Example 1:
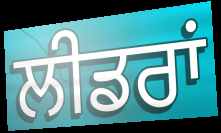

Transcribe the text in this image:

ਲੀਡਰਾਂ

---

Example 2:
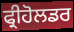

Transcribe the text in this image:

ਫ੍ਰੀਹੋਲਡਰ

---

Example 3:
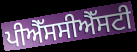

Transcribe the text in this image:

ਪੀਐੱਸਸੀਐੱਸਟੀ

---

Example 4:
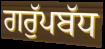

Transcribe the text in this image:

ਗਰੁੱਪਬੱਧ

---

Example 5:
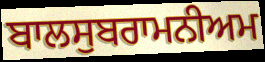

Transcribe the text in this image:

ਬਾਲਸੁਬਰਾਮਨੀਅਮ